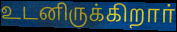
உடனிருக்கிறார்